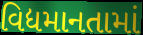
વિદ્યમાનતામાં